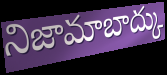
నిజామాబాద్కు